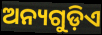
ଅନ୍ୟଗୁଡ଼ିଏ